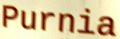
Purnia